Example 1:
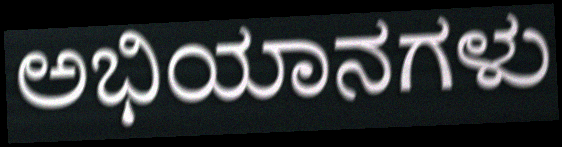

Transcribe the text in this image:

ಅಭಿಯಾನಗಳು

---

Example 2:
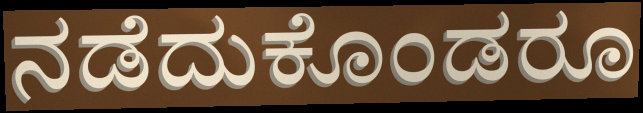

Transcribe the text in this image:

ನಡೆದುಕೊಂಡರೂ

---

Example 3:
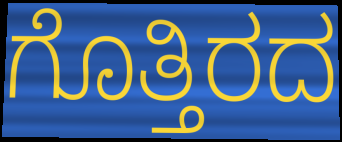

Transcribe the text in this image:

ಗೊತ್ತಿರದ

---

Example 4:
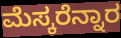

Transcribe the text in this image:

ಮೆಸ್ಕರೆನ್ನಾರ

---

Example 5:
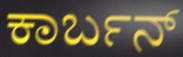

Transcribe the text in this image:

ಕಾರ್ಬನ್